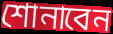
শোনাবেন